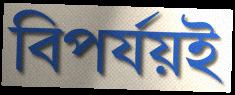
বিপর্যয়ই